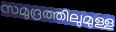
സമുദ്രത്തിലുമുള്ള